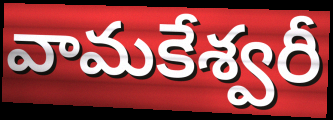
వామకేశ్వరీ